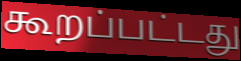
கூறப்பட்டது